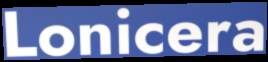
Lonicera